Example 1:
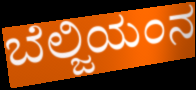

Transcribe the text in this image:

ಬೆಲ್ಜಿಯಂನ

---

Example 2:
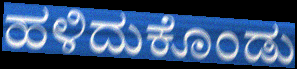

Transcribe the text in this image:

ಹಳಿದುಕೊಂಡು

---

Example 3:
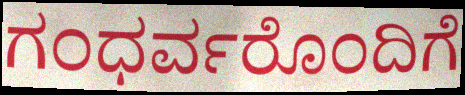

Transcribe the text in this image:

ಗಂಧರ್ವರೊಂದಿಗೆ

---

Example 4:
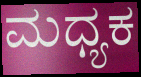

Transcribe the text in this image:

ಮಧ್ಯಕ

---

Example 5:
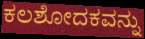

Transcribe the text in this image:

ಕಲಶೋದಕವನ್ನು